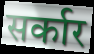
सर्कार